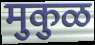
मुकुळ